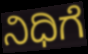
ನಿಧಿಗೆ